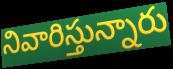
నివారిస్తున్నారు